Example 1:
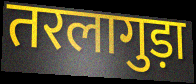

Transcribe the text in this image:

तरलागुड़ा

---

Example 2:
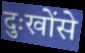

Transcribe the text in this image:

दुःखोंसे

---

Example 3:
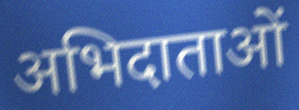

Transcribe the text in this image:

अभिदाताओं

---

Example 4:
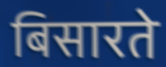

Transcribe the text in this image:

बिसारते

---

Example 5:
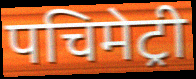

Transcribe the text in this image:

पचिमेट्री